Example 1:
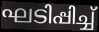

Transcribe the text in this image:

ഘടിപ്പിച്ച്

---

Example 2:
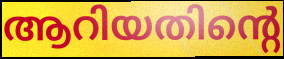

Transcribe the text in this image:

ആറിയതിന്റെ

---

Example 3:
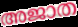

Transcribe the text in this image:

അജാത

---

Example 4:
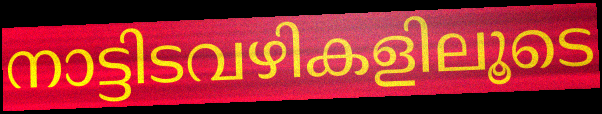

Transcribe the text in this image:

നാട്ടിടവഴികളിലൂടെ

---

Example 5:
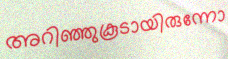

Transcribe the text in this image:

അറിഞ്ഞുകൂടായിരുന്നോ